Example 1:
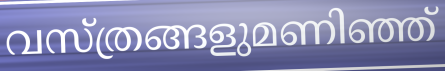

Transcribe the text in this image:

വസ്ത്രങ്ങളുമണിഞ്ഞ്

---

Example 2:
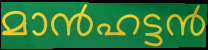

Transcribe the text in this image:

മാൻഹട്ടൻ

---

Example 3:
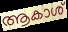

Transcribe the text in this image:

ആകാശ്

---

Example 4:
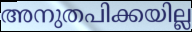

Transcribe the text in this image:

അനുതപിക്കയില്ല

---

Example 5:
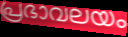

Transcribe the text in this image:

പ്രഭാവലയം